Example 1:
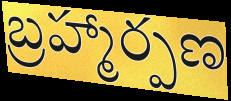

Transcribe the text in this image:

బ్రహ్మార్పణ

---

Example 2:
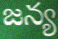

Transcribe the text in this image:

జన్య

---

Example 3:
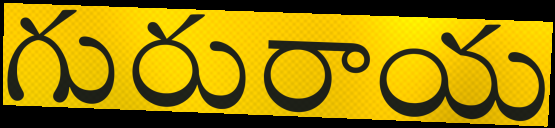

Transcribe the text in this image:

గురురాయ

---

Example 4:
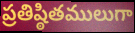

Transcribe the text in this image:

ప్రతిష్ఠితములుగా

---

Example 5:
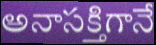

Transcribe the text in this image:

అనాసక్తిగానే